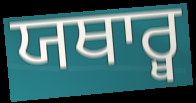
ਯਥਾਰ੍ਥ